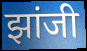
झांजी